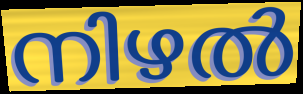
നിഴൽ